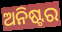
ଅନିଷ୍ଟର